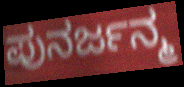
ಪುನರ್ಜನ್ಮ